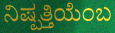
ನಿಷ್ಪತ್ತಿಯೆಂಬ